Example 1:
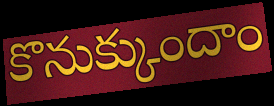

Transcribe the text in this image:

కొనుక్కుందాం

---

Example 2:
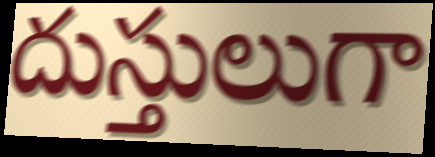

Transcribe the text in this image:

దుస్తులుగా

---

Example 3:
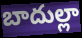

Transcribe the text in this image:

బాదుల్లా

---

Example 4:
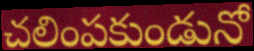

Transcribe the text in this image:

చలింపకుండునో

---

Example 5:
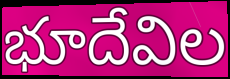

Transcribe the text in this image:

భూదేవిల